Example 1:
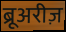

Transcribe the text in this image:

ब्रूअरीज़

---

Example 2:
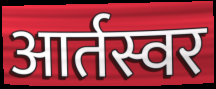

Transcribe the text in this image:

आर्तस्वर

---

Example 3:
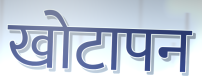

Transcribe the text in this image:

खोटापन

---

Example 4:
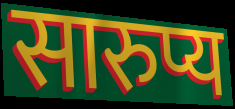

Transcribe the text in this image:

सारुप्य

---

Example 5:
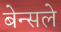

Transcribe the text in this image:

बेन्सले